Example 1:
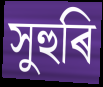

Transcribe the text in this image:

সুহুৰি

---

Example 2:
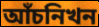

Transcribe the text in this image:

আঁচনিখন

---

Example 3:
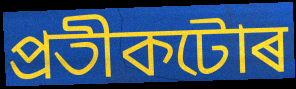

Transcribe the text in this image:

প্ৰতীকটোৰ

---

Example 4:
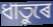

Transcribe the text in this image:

ধাতুৰে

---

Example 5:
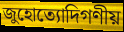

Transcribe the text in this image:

জুহোত্যোদিগণীয়